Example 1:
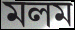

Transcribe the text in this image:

মলম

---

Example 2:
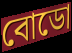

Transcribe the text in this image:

বোডো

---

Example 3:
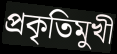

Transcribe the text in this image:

প্রকৃতিমুখী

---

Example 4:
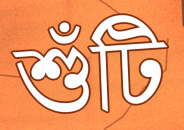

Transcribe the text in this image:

শুঁটি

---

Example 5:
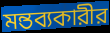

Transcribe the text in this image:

মন্তব্যকারীর